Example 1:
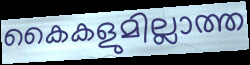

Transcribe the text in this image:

കൈകളുമില്ലാത്ത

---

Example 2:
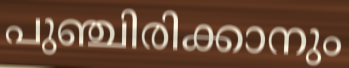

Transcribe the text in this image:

പുഞ്ചിരിക്കാനും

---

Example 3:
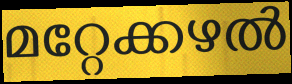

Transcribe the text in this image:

മറ്റേക്കഴൽ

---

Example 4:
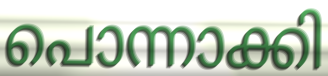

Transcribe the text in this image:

പൊന്നാക്കി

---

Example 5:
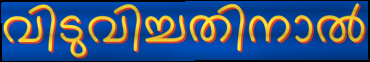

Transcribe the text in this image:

വിടുവിച്ചതിനാൽ